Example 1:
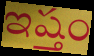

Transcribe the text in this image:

ఇష్తం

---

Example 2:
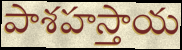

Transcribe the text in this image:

పాశహస్తాయ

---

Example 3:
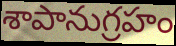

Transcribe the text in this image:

శాపానుగ్రహం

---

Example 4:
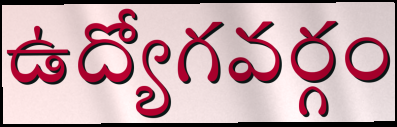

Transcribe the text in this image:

ఉద్యోగవర్గం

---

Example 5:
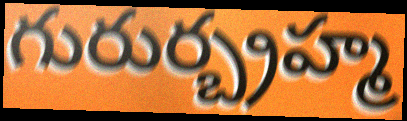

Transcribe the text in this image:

గురుర్బ్రహ్మ